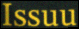
Issuu